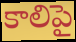
కాలిపై